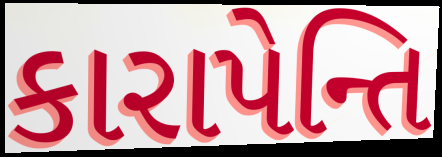
કારાપેન્તિ